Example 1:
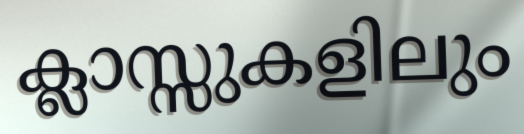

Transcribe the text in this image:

ക്ലാസ്സുകളിലും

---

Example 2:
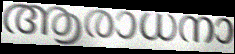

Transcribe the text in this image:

ആരാധനാ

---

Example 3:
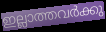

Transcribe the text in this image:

ഇല്ലാത്തവർക്കു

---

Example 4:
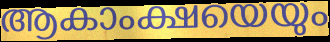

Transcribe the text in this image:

ആകാംക്ഷയെയും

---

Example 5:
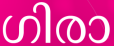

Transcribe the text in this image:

ഗിരാ